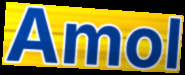
Amol